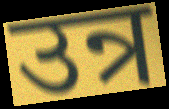
उन्र